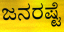
ಜನರಷ್ಟೆ